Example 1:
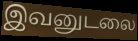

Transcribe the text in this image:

இவனுடலை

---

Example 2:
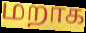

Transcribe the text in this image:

மறாக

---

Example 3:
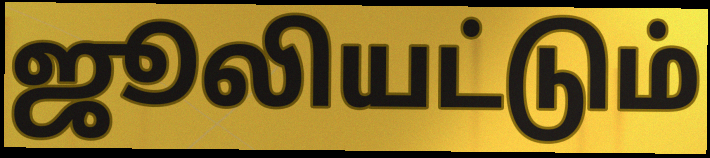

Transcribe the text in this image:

ஜூலியட்டும்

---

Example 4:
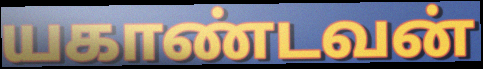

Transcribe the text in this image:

யகாண்டவன்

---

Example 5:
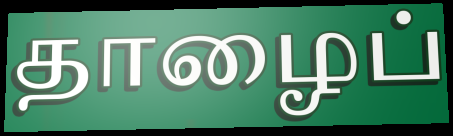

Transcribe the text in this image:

தாழைப்